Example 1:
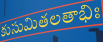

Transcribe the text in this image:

కుసుమితలతాభిః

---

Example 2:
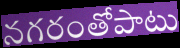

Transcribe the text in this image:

నగరంతోపాటు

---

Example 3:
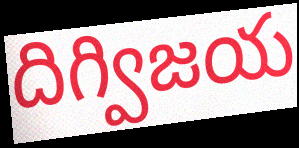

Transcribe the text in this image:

దిగ్విజయ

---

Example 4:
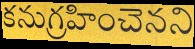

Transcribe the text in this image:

కనుగ్రహించెనని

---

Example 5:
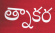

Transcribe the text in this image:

త్నాకర